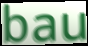
bau